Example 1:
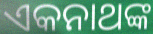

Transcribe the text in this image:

ଏକନାଥଙ୍କ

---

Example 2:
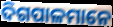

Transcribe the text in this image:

ଦିଗପାଳମାନେ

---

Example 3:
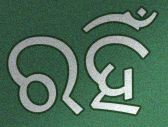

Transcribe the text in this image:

ରହିଁ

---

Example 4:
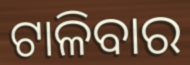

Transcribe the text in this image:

ଟାଳିବାର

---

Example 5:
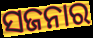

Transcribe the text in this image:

ସଜନାର